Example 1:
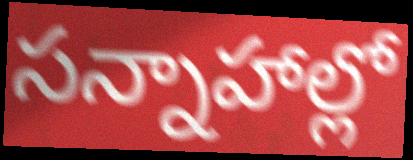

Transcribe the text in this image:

సన్నాహాల్లో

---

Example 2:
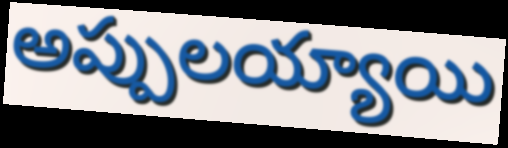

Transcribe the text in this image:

అప్పులయ్యాయి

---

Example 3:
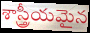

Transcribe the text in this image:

శాస్త్రీయమైన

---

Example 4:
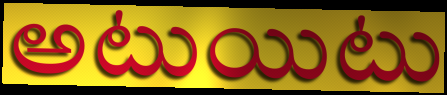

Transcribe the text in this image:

అటుయిటు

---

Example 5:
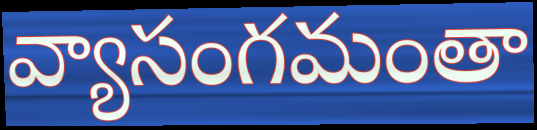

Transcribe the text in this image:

వ్యాసంగమంతా